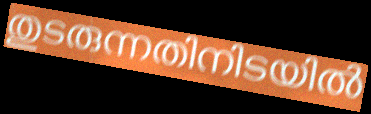
തുടരുന്നതിനിടയിൽ